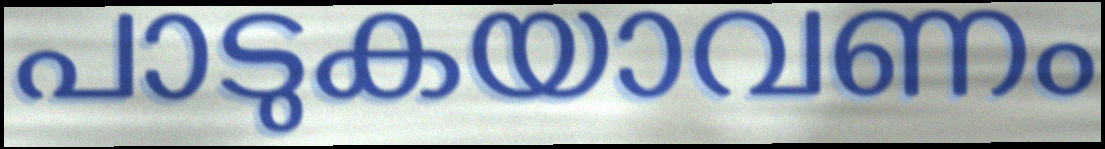
പാടുകയാവണം